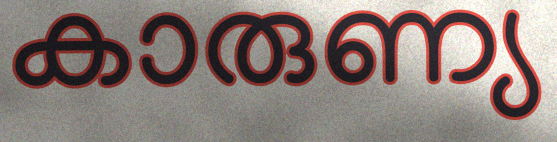
കാരുണ്യ